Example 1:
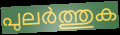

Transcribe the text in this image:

പുലർത്തുക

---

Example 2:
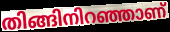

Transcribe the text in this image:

തിങ്ങിനിറഞ്ഞാണ്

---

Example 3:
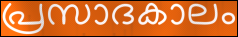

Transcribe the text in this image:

പ്രസാദകാലം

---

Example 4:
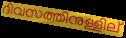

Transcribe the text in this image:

ദിവസത്തിനുള്ളില്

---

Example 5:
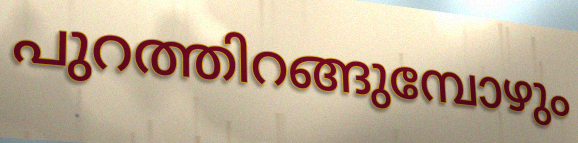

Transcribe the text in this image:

പുറത്തിറങ്ങുമ്പോഴും